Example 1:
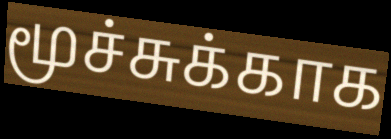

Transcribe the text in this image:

மூச்சுக்காக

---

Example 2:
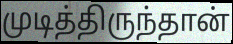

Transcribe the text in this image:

முடித்திருந்தான்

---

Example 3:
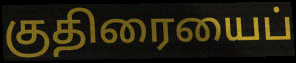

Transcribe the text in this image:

குதிரையைப்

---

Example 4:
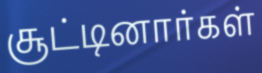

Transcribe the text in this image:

சூட்டினார்கள்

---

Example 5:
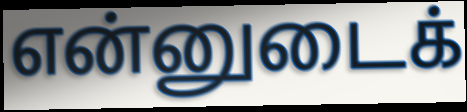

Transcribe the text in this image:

என்னுடைக்